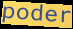
poder